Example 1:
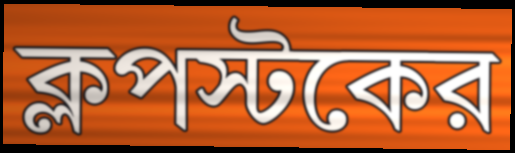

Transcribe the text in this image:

ক্লপস্টকের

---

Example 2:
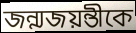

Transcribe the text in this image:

জন্মজয়ন্তীকে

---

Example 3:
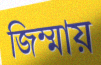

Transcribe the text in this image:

জিম্মায়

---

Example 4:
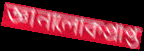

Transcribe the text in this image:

জ্ঞানালোকপ্রাপ্ত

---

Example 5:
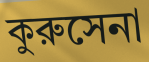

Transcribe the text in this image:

কুরুসেনা